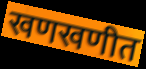
खणखणीत